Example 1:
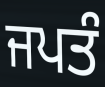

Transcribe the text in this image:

ਜਪਤੰ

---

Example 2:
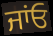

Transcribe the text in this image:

ਜਾਂਓ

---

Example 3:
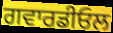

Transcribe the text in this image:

ਗਵਾਰਡੀਓਲ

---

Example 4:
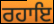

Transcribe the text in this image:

ਰਹਾਇ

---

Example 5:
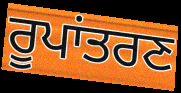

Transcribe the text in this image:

ਰੂਪਾਂਤਰਣ